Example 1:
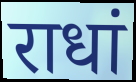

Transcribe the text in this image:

राधां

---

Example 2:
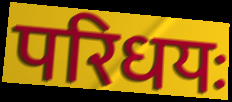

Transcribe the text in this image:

परिधयः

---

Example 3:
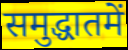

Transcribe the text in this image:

समुद्धातमें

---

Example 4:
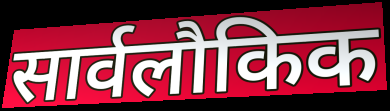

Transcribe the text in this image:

सार्वलौकिक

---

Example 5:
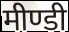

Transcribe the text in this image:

मीण्‍डी